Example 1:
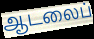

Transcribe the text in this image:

ஆடலைப்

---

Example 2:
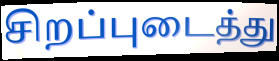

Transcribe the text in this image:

சிறப்புடைத்து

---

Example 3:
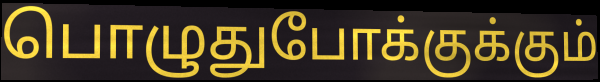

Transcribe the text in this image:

பொழுதுபோக்குக்கும்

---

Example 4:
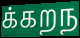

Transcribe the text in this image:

க்கறந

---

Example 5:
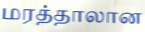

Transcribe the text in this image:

மரத்தாலான